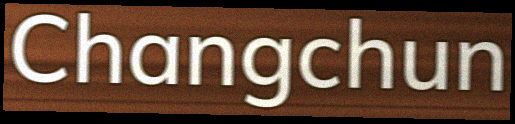
Changchun